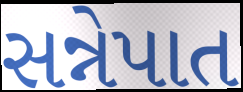
સન્નેપાત